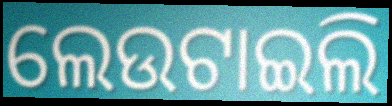
ଲେଉଟାଇଲି